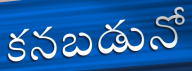
కనబడునో